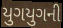
યુગયુગની